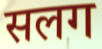
सलग